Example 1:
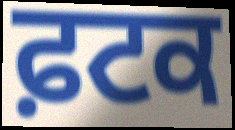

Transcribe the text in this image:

ਫ਼ਟਕ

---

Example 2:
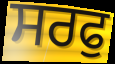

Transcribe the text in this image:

ਸਰਫੁ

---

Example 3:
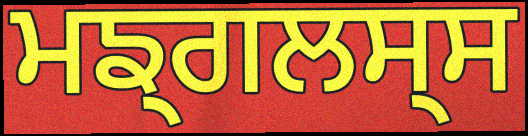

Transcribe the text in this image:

ਮਙ੍ਗਲਸ੍ਸ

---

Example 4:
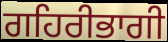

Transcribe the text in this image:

ਗਹਿਰੀਭਾਗੀ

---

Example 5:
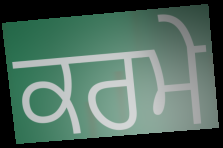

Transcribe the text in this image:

ਕਰਮੇ